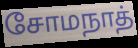
சோமநாத்